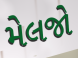
મેલજો